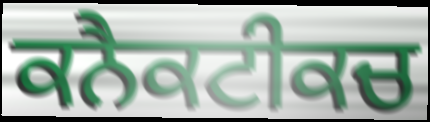
ਕਨੈਕਟੀਕਚ